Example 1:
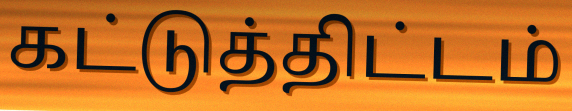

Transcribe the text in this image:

கட்டுத்திட்டம்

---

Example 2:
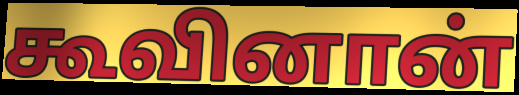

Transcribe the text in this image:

கூவினான்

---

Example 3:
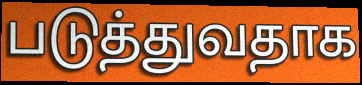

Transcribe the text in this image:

படுத்துவதாக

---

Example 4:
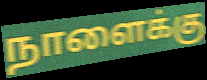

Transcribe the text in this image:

நாளைக்கு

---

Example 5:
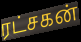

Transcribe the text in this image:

ரட்சகன்